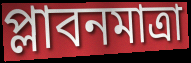
প্লাবনমাত্রা